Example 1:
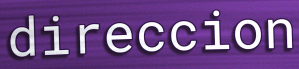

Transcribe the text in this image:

direccion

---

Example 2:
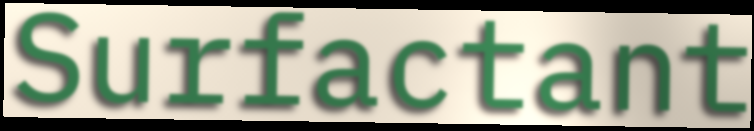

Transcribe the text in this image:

Surfactant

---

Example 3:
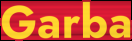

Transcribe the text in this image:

Garba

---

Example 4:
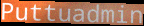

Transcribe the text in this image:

Puttuadmin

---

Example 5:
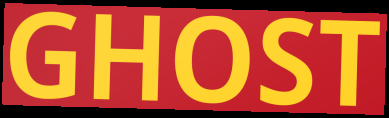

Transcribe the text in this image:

GHOST